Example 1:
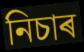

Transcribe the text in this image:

নিচাৰ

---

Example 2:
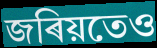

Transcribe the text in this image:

জৰিয়তেও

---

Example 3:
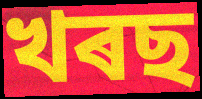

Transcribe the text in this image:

খৰছ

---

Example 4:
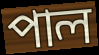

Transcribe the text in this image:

পাল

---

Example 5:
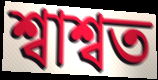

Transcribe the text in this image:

শ্বাশ্বত